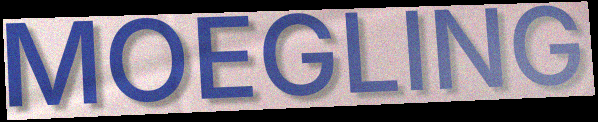
MOEGLING